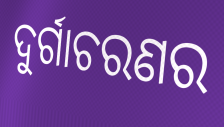
ଦୁର୍ଗାଚରଣର